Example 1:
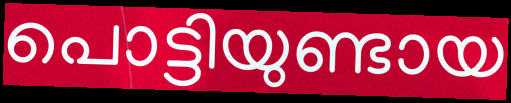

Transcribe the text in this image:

പൊട്ടിയുണ്ടായ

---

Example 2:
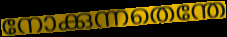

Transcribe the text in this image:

നോക്കുന്നതെന്തേ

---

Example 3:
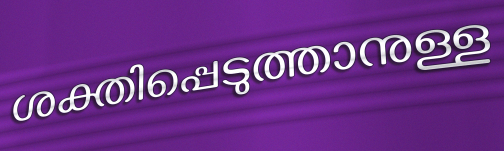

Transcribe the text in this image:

ശക്തിപ്പെടുത്താനുള്ള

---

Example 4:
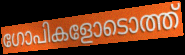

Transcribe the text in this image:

ഗോപികളോടൊത്ത്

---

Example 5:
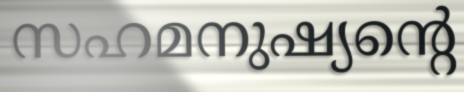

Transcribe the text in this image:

സഹമനുഷ്യന്റെ